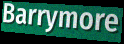
Barrymore